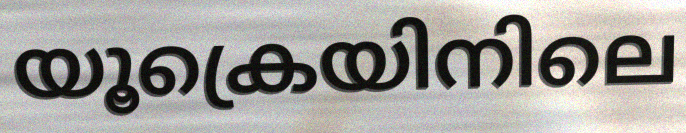
യൂക്രെയിനിലെ